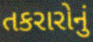
તકરારોનું